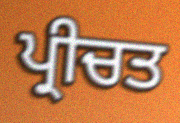
ਪ੍ਰੀਚਤ